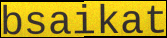
bsaikat